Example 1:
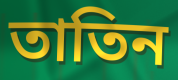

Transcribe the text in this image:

তাতিন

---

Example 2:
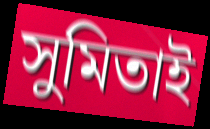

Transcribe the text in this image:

সুমিতাই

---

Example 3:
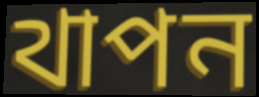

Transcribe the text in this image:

থাপন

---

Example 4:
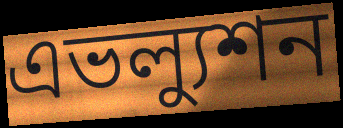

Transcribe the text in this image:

এভল্যুশন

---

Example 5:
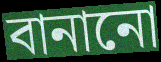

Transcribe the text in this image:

বানানো